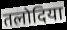
तलोदिया